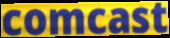
comcast